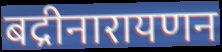
बद्रीनारायणन